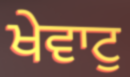
ਖੇਵਾਟੁ